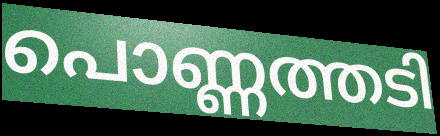
പൊണ്ണത്തടി